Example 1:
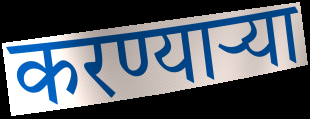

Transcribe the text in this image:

करण्यार्‍या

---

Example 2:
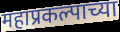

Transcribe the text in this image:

महाप्रकल्पाच्या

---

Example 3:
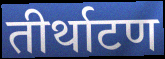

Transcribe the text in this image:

तीर्थाटण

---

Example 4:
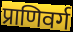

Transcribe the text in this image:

प्राणिवर्ग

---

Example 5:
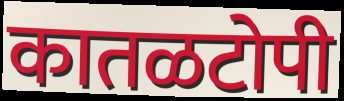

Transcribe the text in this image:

कातळटोपी